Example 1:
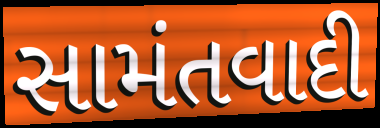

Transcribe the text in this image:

સામંતવાદી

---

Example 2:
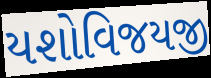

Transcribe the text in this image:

યશોવિજયજી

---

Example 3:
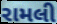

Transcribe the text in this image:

રામલી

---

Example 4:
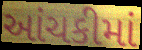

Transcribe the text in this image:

આંચકીમાં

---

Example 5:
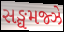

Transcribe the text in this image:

સઙ્ઘમજ્ઝે